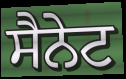
ਸੈਨੇਟ